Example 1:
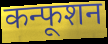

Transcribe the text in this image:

कन्फूशन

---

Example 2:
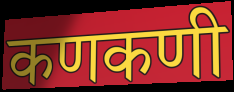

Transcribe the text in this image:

कणकणी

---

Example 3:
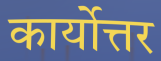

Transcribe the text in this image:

कार्योत्तर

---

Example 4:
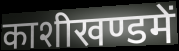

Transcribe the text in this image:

काशीखण्डमें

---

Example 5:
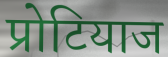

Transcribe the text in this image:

प्रोटियाज